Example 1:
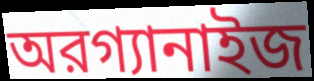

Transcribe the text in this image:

অরগ্যানাইজ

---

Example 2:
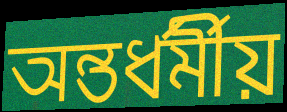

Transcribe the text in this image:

অন্তর্ধর্মীয়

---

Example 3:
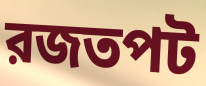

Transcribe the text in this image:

রজতপট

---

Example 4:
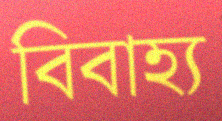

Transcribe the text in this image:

বিবাহ্য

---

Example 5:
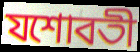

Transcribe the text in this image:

যশোবতী